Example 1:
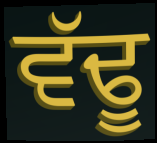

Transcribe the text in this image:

ਵੱਢੂ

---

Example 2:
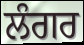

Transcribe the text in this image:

ਲੰਗਰ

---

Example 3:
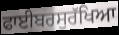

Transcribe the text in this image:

ਫਾਈਬਰਸੁਰੱਖਿਆ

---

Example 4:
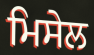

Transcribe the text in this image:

ਮਿਸੇਲ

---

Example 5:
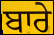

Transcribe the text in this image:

ਬਾਰੇ